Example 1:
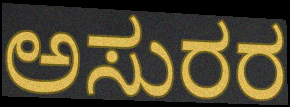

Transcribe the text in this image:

ಅಸುರರ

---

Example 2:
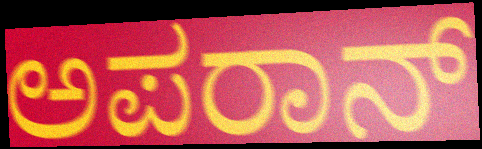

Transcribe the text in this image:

ಅಪರಾನ್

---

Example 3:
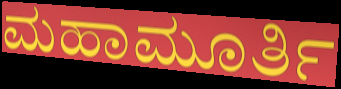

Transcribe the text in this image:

ಮಹಾಮೂರ್ತಿ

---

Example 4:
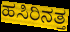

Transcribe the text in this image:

ಹಸಿರಿನತ್ತ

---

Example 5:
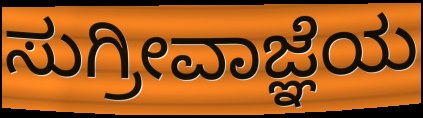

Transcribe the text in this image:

ಸುಗ್ರೀವಾಜ್ಞೆಯ